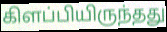
கிளப்பியிருந்தது